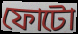
ফোটো